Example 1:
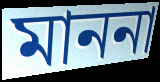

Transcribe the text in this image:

মাননা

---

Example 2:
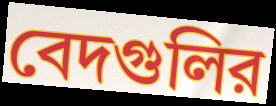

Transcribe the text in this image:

বেদগুলির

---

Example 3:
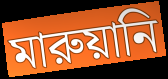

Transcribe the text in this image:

মারুয়ানি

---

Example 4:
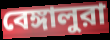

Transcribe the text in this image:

বেঙ্গালুরা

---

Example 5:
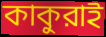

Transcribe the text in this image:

কাকুরাই